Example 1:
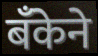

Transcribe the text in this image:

बँकेने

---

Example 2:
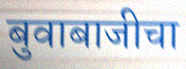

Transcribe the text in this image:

बुवाबाजीचा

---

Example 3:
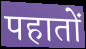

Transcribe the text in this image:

पहातों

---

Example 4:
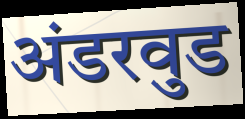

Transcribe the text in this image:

अंडरवुड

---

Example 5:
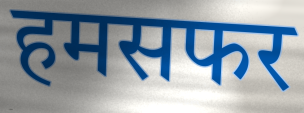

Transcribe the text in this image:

हमसफर